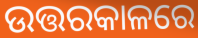
ଉତ୍ତରକାଳରେ